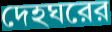
দেহঘরের